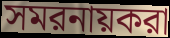
সমরনায়করা